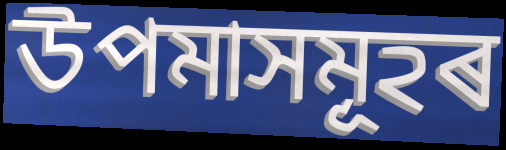
উপমাসমূহৰ